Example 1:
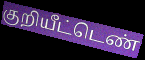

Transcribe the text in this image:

குறியீட்டெண்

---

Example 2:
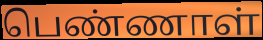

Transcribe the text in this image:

பெண்ணாள்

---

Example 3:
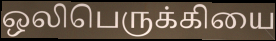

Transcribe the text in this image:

ஒலிபெருக்கியை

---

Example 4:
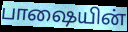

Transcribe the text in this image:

பாஷையின்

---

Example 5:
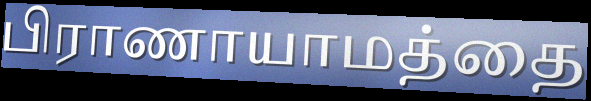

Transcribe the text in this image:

பிராணாயாமத்தை